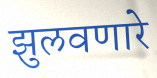
झुलवणारे